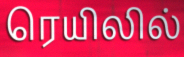
ரெயிலில்